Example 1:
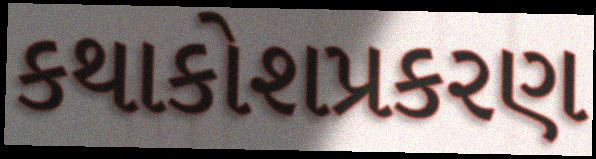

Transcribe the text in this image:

કથાકોશપ્રકરણ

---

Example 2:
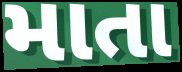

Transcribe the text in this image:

માતા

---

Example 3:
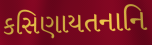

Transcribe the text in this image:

કસિણાયતનાનિ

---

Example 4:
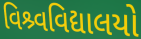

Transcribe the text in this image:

વિશ્ર્વવિદ્યાલયો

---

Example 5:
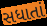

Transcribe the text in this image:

સધાતાં